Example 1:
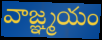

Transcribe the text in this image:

వాజ్ఞ్మయం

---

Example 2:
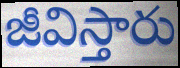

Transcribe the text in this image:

జీవిస్తారు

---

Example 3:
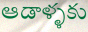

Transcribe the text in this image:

ఆడాళ్ళకు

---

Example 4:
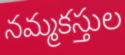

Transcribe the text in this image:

నమ్మకస్తుల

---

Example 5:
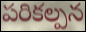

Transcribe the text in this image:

పరికల్పన